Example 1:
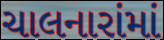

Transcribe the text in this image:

ચાલનારાંમાં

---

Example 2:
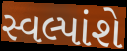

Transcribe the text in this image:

સ્વલ્પાંશે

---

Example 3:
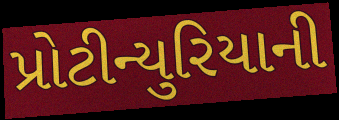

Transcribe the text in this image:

પ્રોટીન્યુરિયાની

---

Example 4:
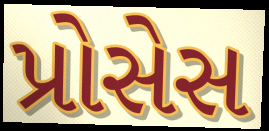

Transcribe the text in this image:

પ્રોસેસ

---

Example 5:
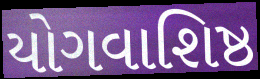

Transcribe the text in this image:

યોગવાશિષ્ઠ